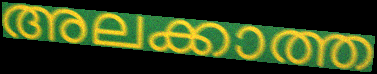
അലക്കാത്ത